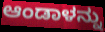
ಆಂಡಾಳನ್ನು